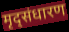
मृद्संधारण